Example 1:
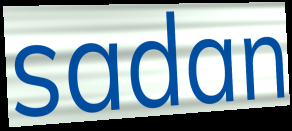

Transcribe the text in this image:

sadan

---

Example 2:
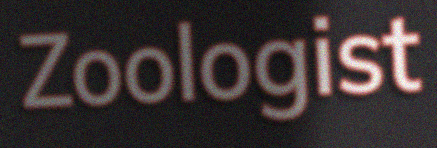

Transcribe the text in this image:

Zoologist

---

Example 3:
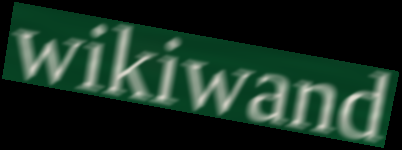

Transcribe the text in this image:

wikiwand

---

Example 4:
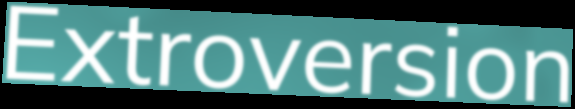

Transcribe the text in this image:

Extroversion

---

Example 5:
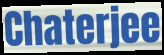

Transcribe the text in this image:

Chaterjee